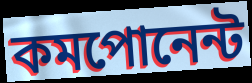
কমপোনেন্ট